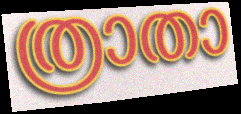
ത്രാതാ